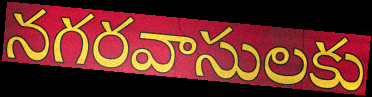
నగరవాసులకు